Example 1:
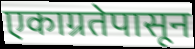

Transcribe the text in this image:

एकाग्रतेपासून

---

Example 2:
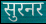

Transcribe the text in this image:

सुरनर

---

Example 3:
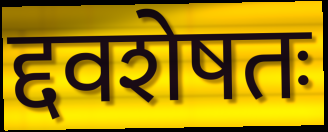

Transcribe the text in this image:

द्दवशेषतः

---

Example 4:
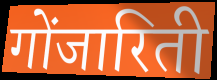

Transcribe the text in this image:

गोंजारिती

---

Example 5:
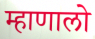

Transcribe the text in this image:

म्हाणालो